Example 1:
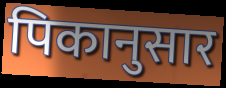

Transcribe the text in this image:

पिकानुसार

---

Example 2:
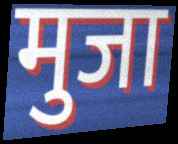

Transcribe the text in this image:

मुजा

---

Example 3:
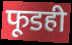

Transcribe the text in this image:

फूडही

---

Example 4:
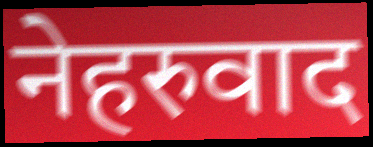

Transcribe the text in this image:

नेहरुवाद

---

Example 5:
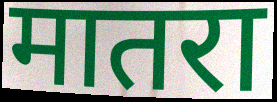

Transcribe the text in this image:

मातरा